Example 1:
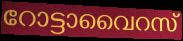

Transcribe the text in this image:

റോട്ടാവൈറസ്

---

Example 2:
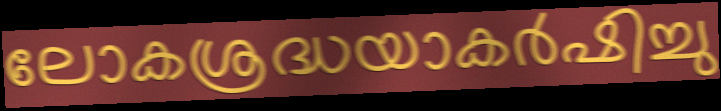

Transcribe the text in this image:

ലോകശ്രദ്ധയാകർഷിച്ചു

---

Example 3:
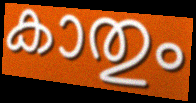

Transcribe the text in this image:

കാതും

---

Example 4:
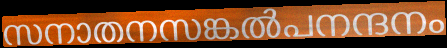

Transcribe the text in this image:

സനാതനസങ്കൽപനന്ദനം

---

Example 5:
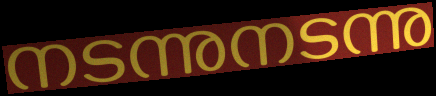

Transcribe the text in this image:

നടന്നുനടന്നു